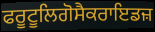
ਫਰੂਟੂਲਿਗੋਸੈਕਰਾਇਡਜ਼